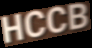
HCCB